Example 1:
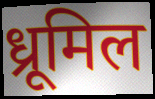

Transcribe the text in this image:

ध्रूमिल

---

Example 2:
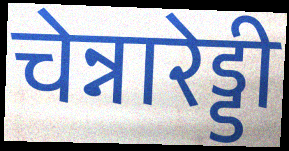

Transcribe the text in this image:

चेन्नारेड्डी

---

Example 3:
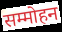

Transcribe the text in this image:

सम्मोहन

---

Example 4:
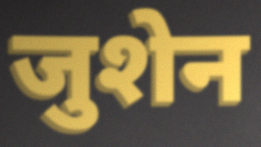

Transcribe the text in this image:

जुशेन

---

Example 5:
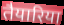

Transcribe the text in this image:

तैयारिया